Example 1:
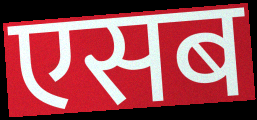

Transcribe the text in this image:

एसब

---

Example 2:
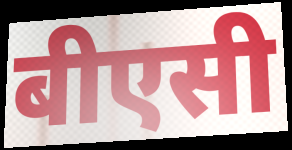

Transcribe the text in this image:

बीएसी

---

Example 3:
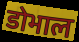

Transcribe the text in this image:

डोभाल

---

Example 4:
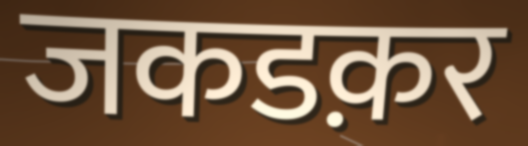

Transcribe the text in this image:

जकडक़र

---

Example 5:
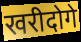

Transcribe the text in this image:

खरीदोगे